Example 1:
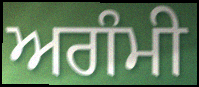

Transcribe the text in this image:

ਅਗੰਮੀ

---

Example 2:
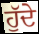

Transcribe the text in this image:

ਹੁੱਦੇ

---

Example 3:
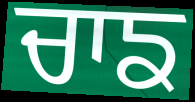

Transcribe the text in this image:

ਚਾਙ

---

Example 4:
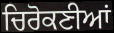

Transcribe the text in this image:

ਚਿਰੋਕਣੀਆਂ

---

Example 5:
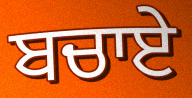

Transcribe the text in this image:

ਬਚਾਏ